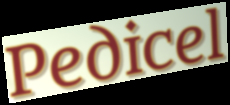
Pedicel